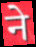
ने